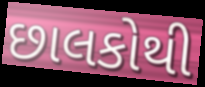
છાલકોથી